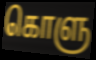
கொளு